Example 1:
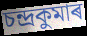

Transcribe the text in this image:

চন্দ্ৰকুমাৰ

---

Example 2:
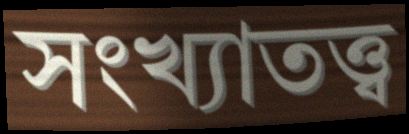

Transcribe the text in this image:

সংখ্যাতত্ত্ব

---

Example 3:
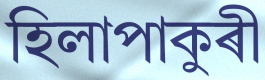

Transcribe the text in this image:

হিলাপাকুৰী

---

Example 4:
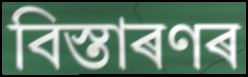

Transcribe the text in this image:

বিস্তাৰণৰ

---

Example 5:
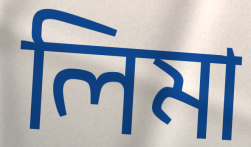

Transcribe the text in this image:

লিমা